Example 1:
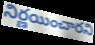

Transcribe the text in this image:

నిర్ణయించారని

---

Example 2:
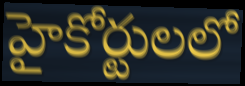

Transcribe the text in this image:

హైకోర్టులలో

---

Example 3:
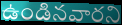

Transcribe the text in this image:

ఉండినవారని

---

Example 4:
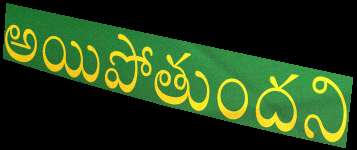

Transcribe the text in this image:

అయిపోతుందని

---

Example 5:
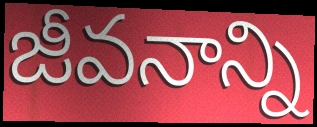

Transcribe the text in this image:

జీవనాన్ని